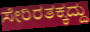
ಸೇರಿರತಕ್ಕದ್ದು